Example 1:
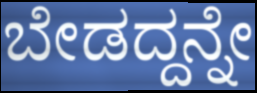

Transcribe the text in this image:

ಬೇಡದ್ದನ್ನೇ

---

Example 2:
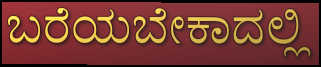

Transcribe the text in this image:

ಬರೆಯಬೇಕಾದಲ್ಲಿ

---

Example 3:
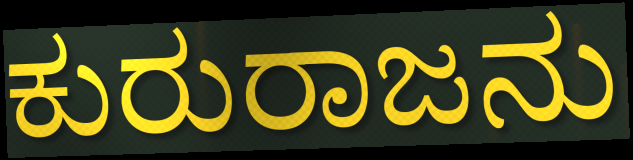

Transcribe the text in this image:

ಕುರುರಾಜನು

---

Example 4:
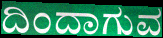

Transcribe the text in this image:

ದಿಂದಾಗುವ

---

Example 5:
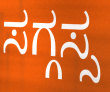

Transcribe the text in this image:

ಸಗ್ಗಸ್ಸ